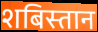
शबिस्तान